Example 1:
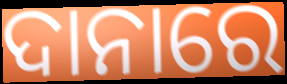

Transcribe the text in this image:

ଦାନାରେ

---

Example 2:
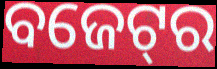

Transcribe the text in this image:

ବଜେଟ୍‌ର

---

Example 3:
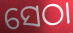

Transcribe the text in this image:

ସେଠା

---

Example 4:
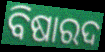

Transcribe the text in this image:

ବିଷାରଦ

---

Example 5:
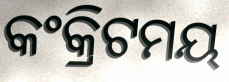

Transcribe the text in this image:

କଂକ୍ରିଟମୟ